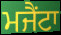
ਮਜੈਂਟਾ